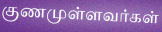
குணமுள்ளவர்கள்